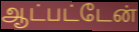
ஆட்பட்டேன்